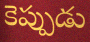
కెప్పుడు